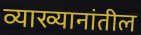
व्याख्यानांतील